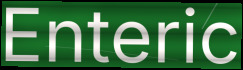
Enteric